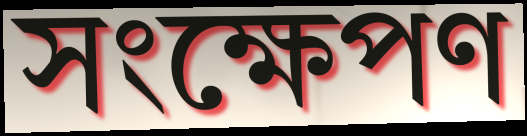
সংক্ষেপণ